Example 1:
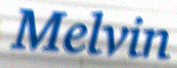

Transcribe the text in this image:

Melvin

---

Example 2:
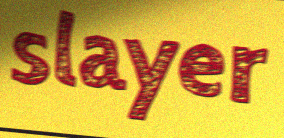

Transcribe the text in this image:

slayer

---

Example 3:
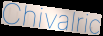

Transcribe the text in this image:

Chivalric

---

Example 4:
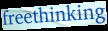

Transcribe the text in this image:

freethinking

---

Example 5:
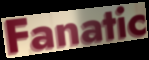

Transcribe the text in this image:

Fanatic